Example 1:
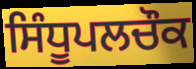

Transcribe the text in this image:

ਸਿੰਧੂਪਲਚੌਕ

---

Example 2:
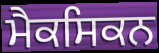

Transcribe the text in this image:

ਮੈਕਸਿਕਨ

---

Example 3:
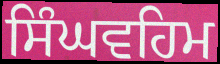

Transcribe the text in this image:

ਸਿੰਘਵਹਿਮ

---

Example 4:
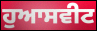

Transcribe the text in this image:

ਹੁਆਸਵੀਟ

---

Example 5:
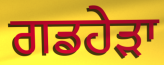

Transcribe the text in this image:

ਗਡਹੇੜਾ